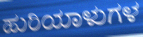
ಹುರಿಯಾಳುಗಳ